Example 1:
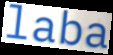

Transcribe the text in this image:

laba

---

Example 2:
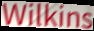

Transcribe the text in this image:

Wilkins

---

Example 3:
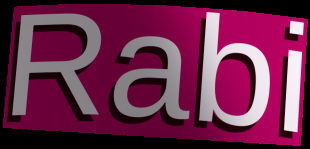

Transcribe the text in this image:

Rabi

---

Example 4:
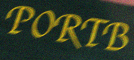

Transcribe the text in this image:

PORTB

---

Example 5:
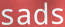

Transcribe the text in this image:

sads